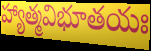
హ్యాత్మవిభూతయః